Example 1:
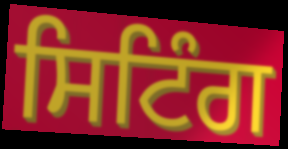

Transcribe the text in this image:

ਸਿਟਿੰਗ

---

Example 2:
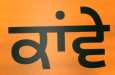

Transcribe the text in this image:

ਕਾਂਵੇ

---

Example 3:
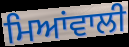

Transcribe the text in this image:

ਮਿਆਂਵਾਲੀ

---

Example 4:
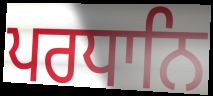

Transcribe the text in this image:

ਪਰਧਾਨਿ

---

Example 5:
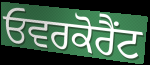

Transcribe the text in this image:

ਓਵਰਕੋਰੈਂਟ